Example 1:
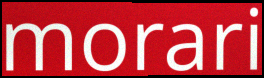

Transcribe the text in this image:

morari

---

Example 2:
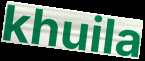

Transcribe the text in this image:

khuila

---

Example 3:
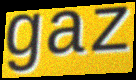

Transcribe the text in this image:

gaz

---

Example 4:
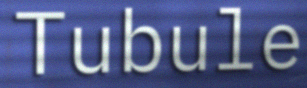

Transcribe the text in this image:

Tubule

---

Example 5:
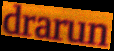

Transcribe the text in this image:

drarun